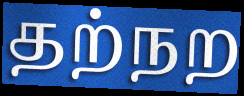
தற்நற